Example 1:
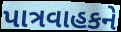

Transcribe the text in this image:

પાત્રવાહકને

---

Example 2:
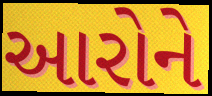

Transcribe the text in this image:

આરોને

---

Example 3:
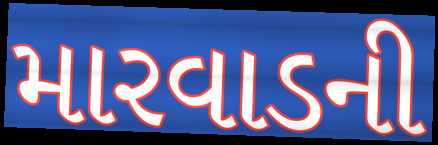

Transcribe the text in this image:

મારવાડની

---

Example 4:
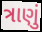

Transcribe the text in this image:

ત્રાણું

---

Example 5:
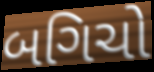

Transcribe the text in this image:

બગિચો